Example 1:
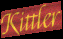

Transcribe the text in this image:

Kittler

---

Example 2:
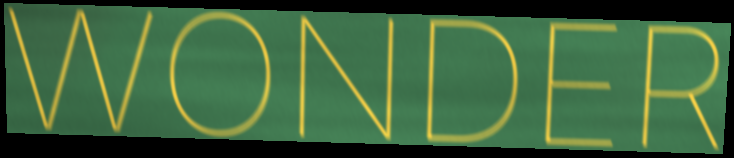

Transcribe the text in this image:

WONDER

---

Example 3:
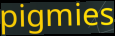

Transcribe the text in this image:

pigmies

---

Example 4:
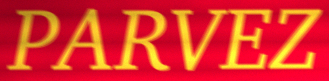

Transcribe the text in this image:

PARVEZ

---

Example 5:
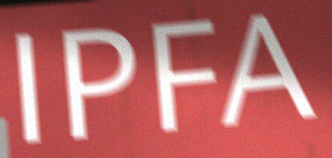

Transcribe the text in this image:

IPFA